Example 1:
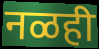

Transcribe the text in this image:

नळही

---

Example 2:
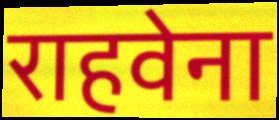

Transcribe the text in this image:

राहवेना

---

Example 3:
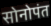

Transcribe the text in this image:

सोनोपंत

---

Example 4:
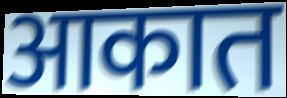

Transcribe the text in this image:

आकात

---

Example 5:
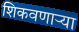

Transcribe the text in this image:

शिकवणाऱ्या